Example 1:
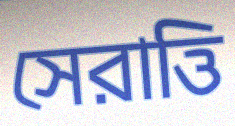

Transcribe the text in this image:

সেরাত্তি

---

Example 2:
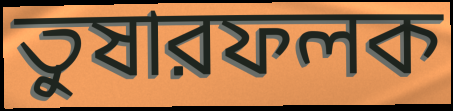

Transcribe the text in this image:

তুষারফলক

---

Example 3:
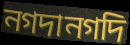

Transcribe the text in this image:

নগদানগদি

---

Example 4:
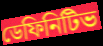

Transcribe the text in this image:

ডেফিনিটিভ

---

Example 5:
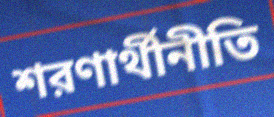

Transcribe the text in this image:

শরণার্থীনীতি